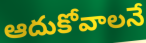
ఆదుకోవాలనే